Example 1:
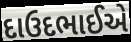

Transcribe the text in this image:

દાઉદભાઈએ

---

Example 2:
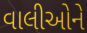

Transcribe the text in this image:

વાલીઓને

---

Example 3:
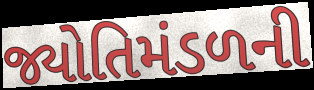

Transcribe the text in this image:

જ્યોતિમંડળની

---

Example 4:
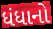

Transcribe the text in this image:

ધંધાનો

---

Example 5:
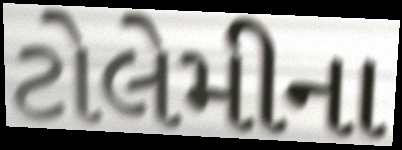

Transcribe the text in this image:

ટોલેમીના